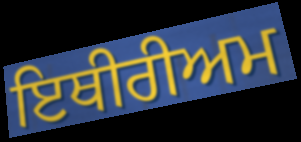
ਇਥੀਰੀਅਮ